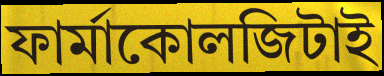
ফার্মাকোলজিটাই